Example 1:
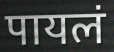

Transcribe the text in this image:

पायलं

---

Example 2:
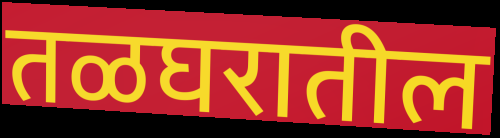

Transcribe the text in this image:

तळघरातील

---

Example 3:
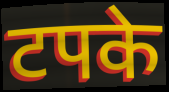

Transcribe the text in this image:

टपके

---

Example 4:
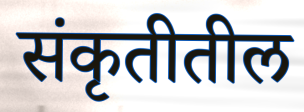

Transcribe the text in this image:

संकृतीतील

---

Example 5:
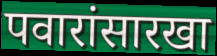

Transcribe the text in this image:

पवारांसारखा